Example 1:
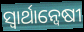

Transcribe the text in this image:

ସ୍ବାର୍ଥାନ୍ବେଷୀ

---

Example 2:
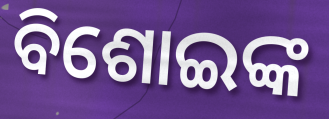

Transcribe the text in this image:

ବିଶୋଇଙ୍କ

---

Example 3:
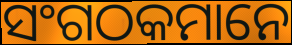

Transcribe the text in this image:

ସଂଗଠକମାନେ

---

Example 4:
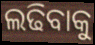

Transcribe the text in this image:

ଲଢିବାକୁ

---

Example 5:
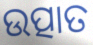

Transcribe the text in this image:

ଉତ୍ପାତ